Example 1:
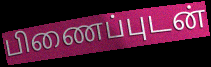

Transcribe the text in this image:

பிணைப்புடன்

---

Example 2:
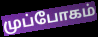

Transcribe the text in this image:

முப்போகம்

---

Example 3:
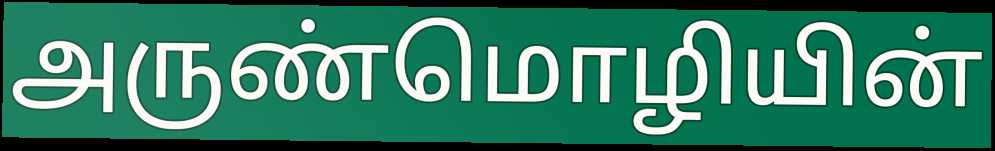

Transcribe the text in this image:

அருண்மொழியின்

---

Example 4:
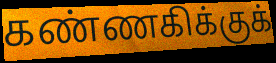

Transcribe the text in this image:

கண்ணகிக்குக்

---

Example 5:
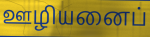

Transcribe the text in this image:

ஊழியனைப்